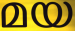
മയ